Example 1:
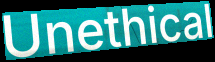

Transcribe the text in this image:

Unethical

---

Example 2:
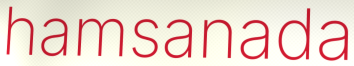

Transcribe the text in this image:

hamsanada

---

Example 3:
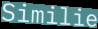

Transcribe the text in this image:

Similie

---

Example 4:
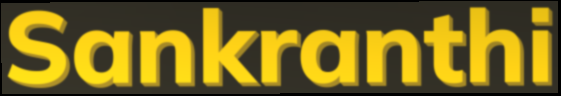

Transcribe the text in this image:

Sankranthi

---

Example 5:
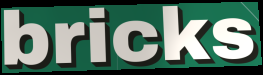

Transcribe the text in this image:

bricks